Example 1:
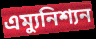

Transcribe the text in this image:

এম্যুনিশ্যন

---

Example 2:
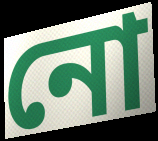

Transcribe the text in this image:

নো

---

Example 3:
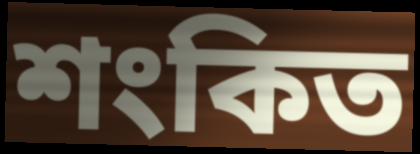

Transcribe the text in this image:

শংকিত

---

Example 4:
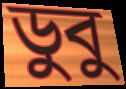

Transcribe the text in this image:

ডুবু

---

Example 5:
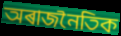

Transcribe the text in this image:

অৰাজনৈতিক